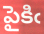
పైకిఁ